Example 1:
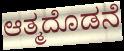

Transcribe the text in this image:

ಆತ್ಮದೊಡನೆ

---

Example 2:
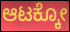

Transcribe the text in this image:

ಆಟಕ್ಕೋ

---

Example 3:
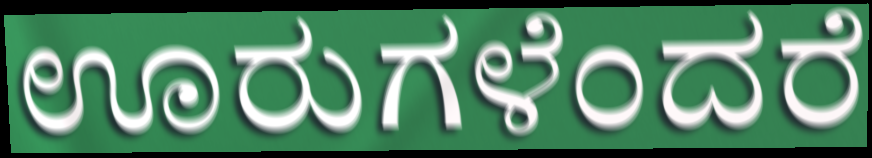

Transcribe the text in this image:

ಊರುಗಳೆಂದರೆ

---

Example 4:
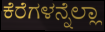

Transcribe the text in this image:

ಕೆರೆಗಳನ್ನೆಲ್ಲಾ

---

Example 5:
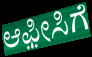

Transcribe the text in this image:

ಆಫ಼ೀಸಿಗೆ